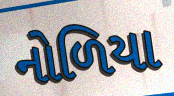
નોળિયા